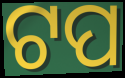
ଟପ